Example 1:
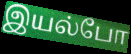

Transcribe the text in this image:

இயல்போ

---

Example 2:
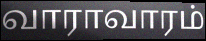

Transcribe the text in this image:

வாராவாரம்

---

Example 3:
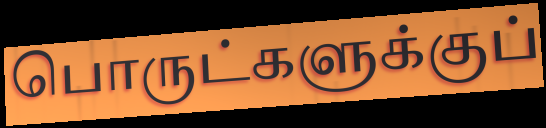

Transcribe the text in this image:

பொருட்களுக்குப்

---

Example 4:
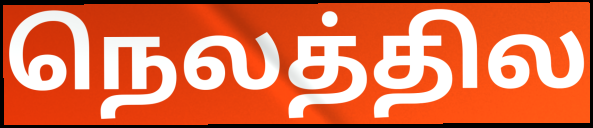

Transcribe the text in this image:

நெலத்தில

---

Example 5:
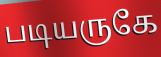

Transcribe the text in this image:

படியருகே